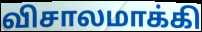
விசாலமாக்கி